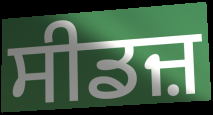
ਸੀਡਜ਼